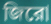
জিরো